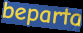
beparta